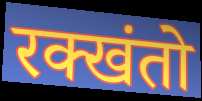
रक्खंतो